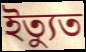
ইত্যুত